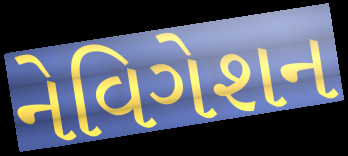
નેવિગેશન